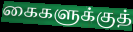
கைகளுக்குத்